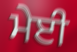
ਮੇਈ